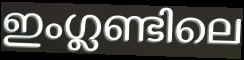
ഇംഗ്ലണ്ടിലെ